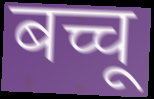
बच्चू